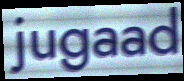
jugaad